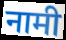
नामी